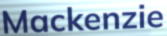
Mackenzie